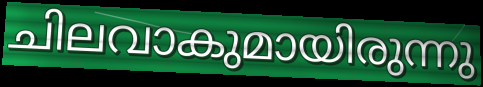
ചിലവാകുമായിരുന്നു